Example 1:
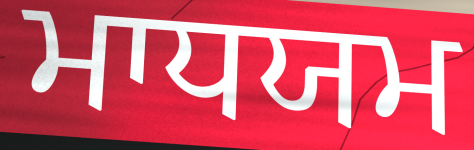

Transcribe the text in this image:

ਮਾਧਯਮ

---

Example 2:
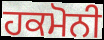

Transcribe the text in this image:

ਹਕਮੋਨੀ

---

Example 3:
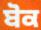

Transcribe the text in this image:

ਬੋਕ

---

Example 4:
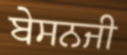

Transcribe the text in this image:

ਬੇਸਨਜੀ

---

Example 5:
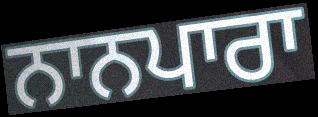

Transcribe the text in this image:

ਨਾਨਪਾਰਾ